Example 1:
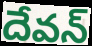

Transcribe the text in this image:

దేవన్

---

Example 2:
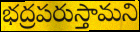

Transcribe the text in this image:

భద్రపరుస్తామని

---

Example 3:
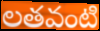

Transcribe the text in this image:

లతవంటి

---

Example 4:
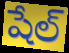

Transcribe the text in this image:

షేల్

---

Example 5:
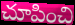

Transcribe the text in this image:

చూపించి